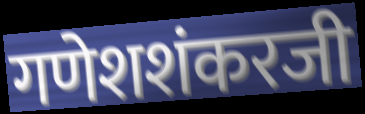
गणेशशंकरजी